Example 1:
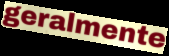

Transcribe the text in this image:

geralmente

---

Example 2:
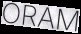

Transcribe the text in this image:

ORAM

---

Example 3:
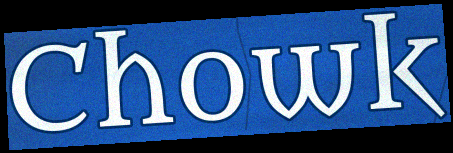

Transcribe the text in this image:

Chowk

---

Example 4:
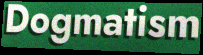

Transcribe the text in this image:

Dogmatism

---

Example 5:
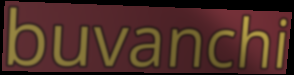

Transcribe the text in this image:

buvanchi